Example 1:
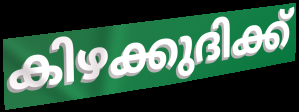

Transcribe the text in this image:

കിഴക്കുദിക്ക്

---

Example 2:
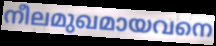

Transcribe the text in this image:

നീലമുഖമായവനെ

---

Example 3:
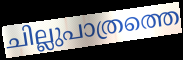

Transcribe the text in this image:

ചില്ലുപാത്രത്തെ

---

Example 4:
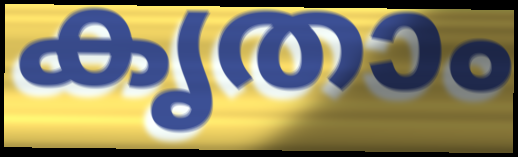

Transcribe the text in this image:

കൃതാം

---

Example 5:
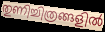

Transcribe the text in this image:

തുണിച്ചിത്രങ്ങളിൽ